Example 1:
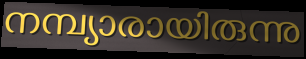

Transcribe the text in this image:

നമ്പ്യാരായിരുന്നു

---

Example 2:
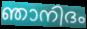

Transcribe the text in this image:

ഞാനിദം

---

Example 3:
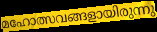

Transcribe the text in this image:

മഹോത്സവങ്ങളായിരുന്നു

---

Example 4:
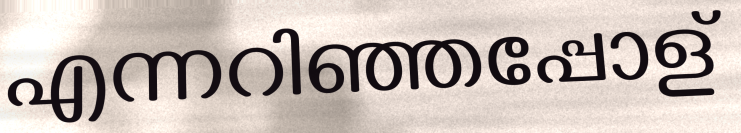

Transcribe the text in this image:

എന്നറിഞ്ഞപ്പോള്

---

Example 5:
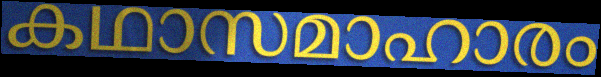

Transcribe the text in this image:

കഥാസമാഹാരം